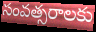
సంవత్సరాలకు